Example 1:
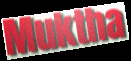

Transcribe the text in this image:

Muktha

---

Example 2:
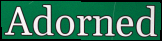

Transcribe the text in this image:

Adorned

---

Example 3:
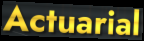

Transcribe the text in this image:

Actuarial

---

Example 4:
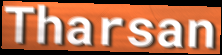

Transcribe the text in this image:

Tharsan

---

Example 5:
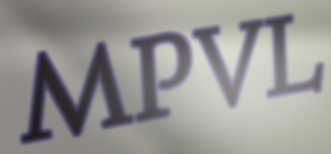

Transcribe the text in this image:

MPVL